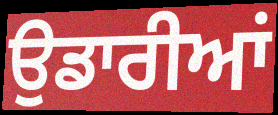
ਉਡਾਰੀਆਂ